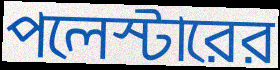
পলেস্টারের